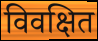
विवक्षित